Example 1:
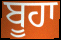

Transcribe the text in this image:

ਬੂਹਾ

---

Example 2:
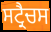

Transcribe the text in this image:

ਸਟ੍ਰੈਚਸ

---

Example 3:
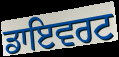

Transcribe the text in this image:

ਡਾਇਵਰਟ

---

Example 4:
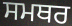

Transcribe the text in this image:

ਸਮਥਰ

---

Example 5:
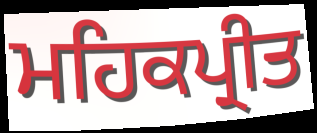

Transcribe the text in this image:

ਮਹਿਕਪ੍ਰੀਤ